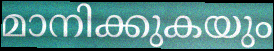
മാനിക്കുകയും